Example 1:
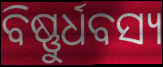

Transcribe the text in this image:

ବିଷ୍ଣୁର୍ଧବସ୍ୟ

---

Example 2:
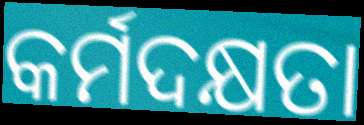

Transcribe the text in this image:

କର୍ମଦକ୍ଷତା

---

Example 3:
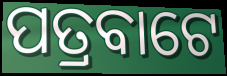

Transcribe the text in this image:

ପତ୍ରବାଟେ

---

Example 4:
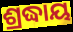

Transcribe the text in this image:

ଶ୍ରଦ୍ଧାୟ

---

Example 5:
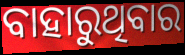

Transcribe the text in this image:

ବାହାରୁଥିବାର